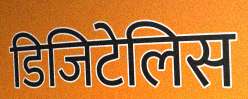
डिजिटेलिस